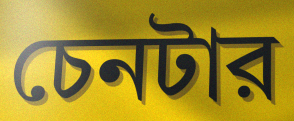
চেনটার